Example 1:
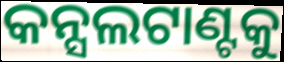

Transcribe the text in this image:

କନ୍ସଲଟାଣ୍ଟକୁ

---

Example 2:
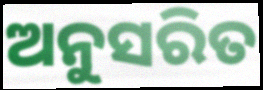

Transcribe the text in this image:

ଅନୁସରିତ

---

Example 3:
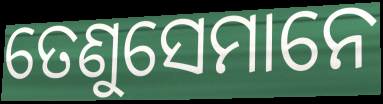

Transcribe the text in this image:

ତେଣୁସେମାନେ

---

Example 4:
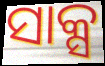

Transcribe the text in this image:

ସାକ୍ସ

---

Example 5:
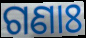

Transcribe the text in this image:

ଗଣାଃ